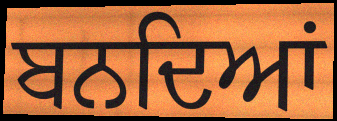
ਬਨਦਿਆਂ